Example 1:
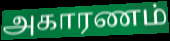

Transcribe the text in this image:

அகாரணம்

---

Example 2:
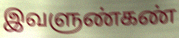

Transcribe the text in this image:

இவளுண்கண்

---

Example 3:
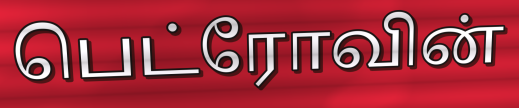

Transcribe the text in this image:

பெட்ரோவின்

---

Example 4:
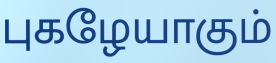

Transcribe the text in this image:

புகழேயாகும்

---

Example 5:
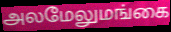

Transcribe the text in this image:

அலமேலுமங்கை